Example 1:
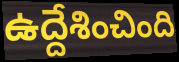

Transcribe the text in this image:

ఉద్దేశించింది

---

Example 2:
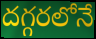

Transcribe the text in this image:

దగ్గరలోనే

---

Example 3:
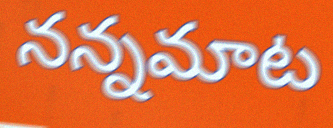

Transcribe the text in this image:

నన్నమాట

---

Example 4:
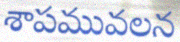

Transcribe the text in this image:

శాపమువలన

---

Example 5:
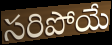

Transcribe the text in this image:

సరిపోయే